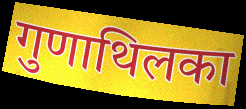
गुणाथिलका